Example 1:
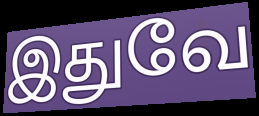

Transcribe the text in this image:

இதுவே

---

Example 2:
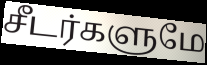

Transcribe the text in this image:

சீடர்களுமே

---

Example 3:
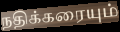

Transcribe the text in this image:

நதிக்கரையும்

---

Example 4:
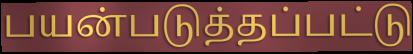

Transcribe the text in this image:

பயன்படுத்தப்பட்டு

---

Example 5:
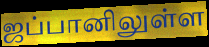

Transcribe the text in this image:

ஜப்பானிலுள்ள